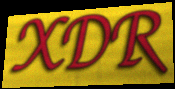
XDR